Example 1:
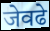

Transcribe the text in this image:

जेवढे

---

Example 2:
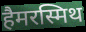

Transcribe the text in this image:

हैमरस्मिथ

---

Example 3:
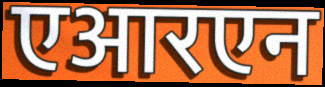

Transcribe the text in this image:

एआरएन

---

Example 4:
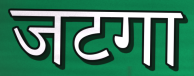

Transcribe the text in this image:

जटगा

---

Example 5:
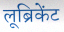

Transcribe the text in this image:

लूब्रिकेंट